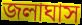
জলাঘাস